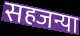
सहजन्या